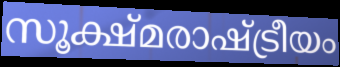
സൂക്ഷ്മരാഷ്ട്രീയം